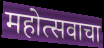
महोत्सवाचा